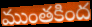
ముంతకింద